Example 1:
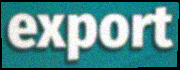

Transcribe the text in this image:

export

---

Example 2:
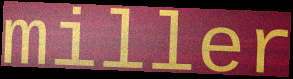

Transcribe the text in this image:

miller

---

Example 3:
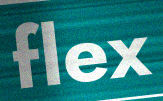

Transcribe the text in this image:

flex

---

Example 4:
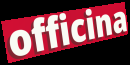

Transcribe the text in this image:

officina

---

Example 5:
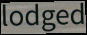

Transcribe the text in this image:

lodged